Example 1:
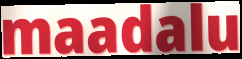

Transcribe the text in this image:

maadalu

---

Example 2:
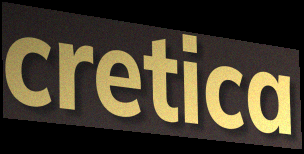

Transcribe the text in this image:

cretica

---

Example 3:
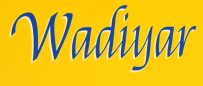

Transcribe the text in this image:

Wadiyar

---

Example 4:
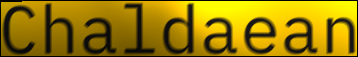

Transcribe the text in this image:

Chaldaean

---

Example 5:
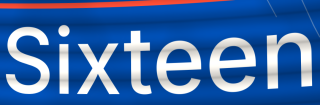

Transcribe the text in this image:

Sixteen